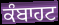
ਕੰਬਾਹਟ